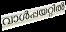
വാൾപ്പയറ്റിൽ